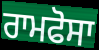
ਰਾਮਫੋਸਾ